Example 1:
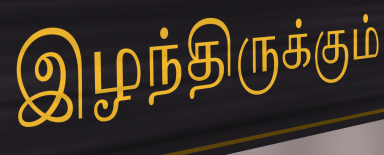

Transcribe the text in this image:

இழந்திருக்கும்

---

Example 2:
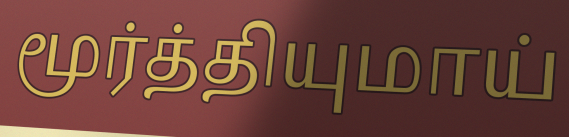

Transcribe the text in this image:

மூர்த்தியுமாய்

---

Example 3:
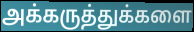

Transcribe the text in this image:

அக்கருத்துக்களை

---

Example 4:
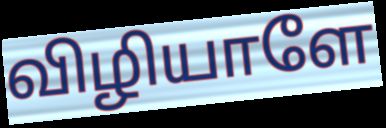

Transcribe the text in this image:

விழியாளே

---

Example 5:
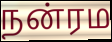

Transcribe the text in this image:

நன்ரம